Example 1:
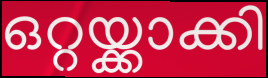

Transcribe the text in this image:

ഒറ്റയ്ക്കാക്കി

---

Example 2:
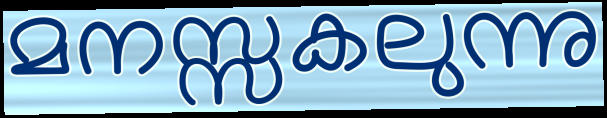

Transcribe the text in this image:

മനസ്സകലുന്നു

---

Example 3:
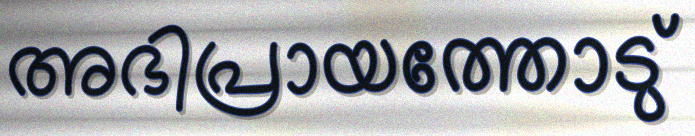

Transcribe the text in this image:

അഭിപ്രായത്തോടു്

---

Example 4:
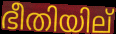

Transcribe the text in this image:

ഭീതിയില്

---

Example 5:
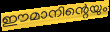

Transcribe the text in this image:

ഈമാനിന്റെയും